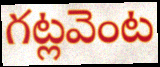
గట్లవెంట